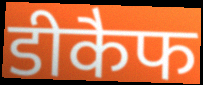
डीकैफ